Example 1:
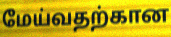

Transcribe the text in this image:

மேய்வதற்கான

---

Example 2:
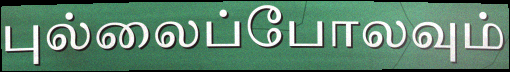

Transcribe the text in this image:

புல்லைப்போலவும்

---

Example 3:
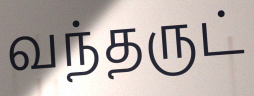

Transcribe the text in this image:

வந்தருட்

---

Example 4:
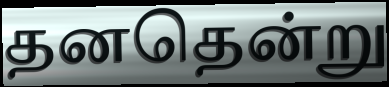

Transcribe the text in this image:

தனதென்று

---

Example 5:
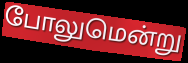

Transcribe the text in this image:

போலுமென்று